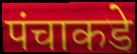
पंचाकडे